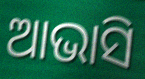
ଆଭାସି